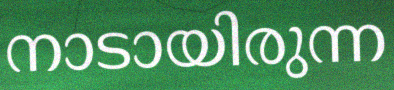
നാടായിരുന്ന